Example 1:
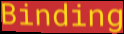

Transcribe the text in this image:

Binding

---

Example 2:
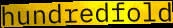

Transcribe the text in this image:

hundredfold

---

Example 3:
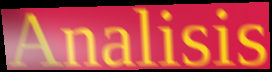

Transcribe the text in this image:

Analisis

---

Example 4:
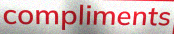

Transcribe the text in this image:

compliments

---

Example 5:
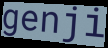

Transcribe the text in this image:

genji